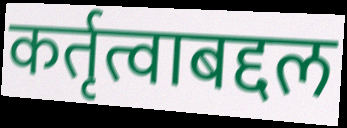
कर्तृत्वाबद्दल